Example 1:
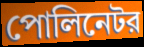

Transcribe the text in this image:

পোলিনেটর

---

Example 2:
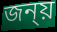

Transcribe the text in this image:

জন্য়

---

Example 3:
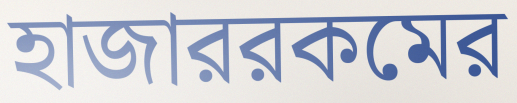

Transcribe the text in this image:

হাজাররকমের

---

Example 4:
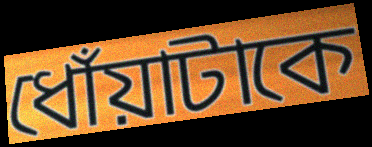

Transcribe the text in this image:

ধোঁয়াটাকে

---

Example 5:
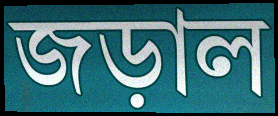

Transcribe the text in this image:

জড়াল